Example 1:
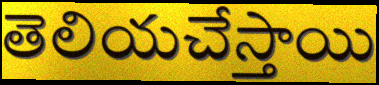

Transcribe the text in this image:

తెలియచేస్తాయి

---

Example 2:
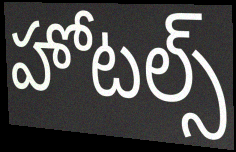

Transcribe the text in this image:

హోటల్స్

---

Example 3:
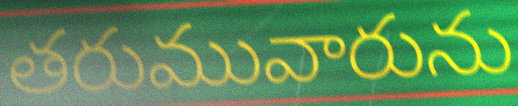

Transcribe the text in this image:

తరుమువారును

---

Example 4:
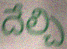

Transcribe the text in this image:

దేల్చి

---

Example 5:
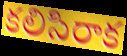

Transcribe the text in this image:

కలిసిరాక